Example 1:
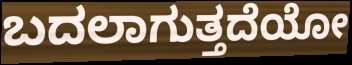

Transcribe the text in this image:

ಬದಲಾಗುತ್ತದೆಯೋ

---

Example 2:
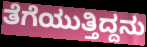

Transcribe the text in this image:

ತೆಗೆಯುತ್ತಿದ್ದನು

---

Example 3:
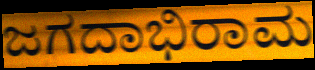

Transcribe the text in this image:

ಜಗದಾಭಿರಾಮ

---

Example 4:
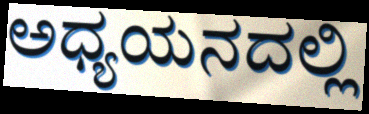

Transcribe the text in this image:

ಅಧ್ಯಯನದಲ್ಲಿ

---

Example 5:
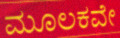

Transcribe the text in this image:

ಮೂಲಕವೇ